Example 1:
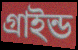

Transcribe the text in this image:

গ্রাইন্ড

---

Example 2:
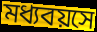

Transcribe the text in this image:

মধ্যবয়সে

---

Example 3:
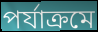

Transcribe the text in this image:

পর্যাক্রমে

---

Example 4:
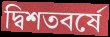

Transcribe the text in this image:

দ্বিশতবর্ষে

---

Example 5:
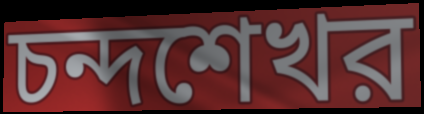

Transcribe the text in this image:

চন্দশেখর